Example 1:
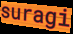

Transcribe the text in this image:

suragi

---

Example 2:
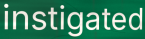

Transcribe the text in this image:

instigated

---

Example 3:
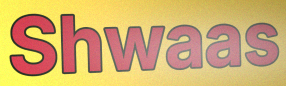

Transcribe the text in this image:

Shwaas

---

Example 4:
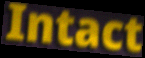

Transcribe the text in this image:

Intact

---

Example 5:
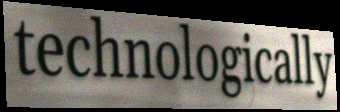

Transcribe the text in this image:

technologically